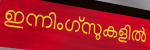
ഇന്നിംഗ്സുകളിൽ